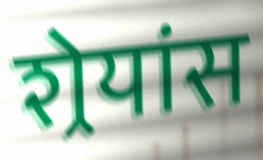
श्रेयांस